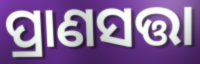
ପ୍ରାଣସତ୍ତା